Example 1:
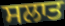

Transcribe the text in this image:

ਸਲਾਤ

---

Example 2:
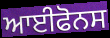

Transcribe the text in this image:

ਆਈਫੋਨਸ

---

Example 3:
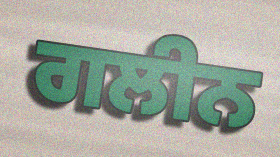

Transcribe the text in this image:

ਗਲੀਨ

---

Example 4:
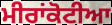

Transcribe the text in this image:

ਮੀਰਾਂਕੋਟੀਆ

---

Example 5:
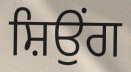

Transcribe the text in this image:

ਸ਼ਿਉਂਗ